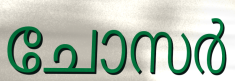
ചോസർ